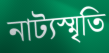
নাট্যস্মৃতি